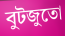
বুটজুতো